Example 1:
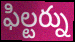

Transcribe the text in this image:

ఫిల్టర్ను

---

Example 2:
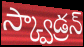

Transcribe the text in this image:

స్క్వాడ్రన్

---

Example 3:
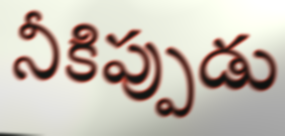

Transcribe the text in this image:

నీకిప్పుడు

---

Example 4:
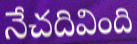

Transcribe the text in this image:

నేచదివింది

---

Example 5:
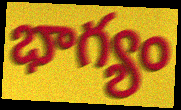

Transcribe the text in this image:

భాగ్యం